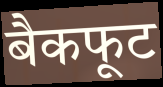
बैकफूट